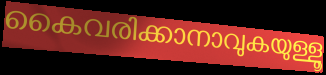
കൈവരിക്കാനാവുകയുള്ളൂ